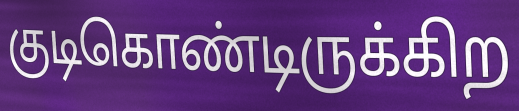
குடிகொண்டிருக்கிற